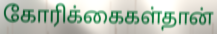
கோரிக்கைகள்தான்